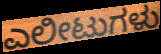
ಎಲೀಟುಗಳು